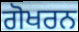
ਗੋਖਰਨ